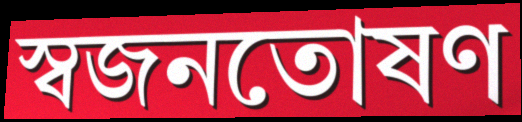
স্বজনতোষণ